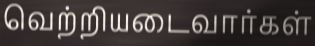
வெற்றியடைவார்கள்